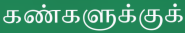
கண்களுக்குக்